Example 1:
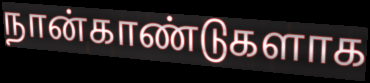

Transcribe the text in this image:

நான்காண்டுகளாக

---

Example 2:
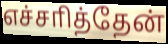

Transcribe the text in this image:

எச்சரித்தேன்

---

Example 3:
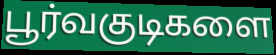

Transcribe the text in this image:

பூர்வகுடிகளை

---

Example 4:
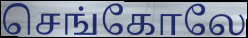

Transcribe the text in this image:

செங்கோலே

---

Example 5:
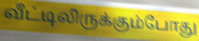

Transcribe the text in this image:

வீட்டிலிருக்கும்போது